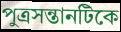
পুত্রসন্তানটিকে